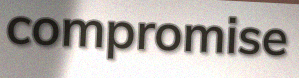
compromise